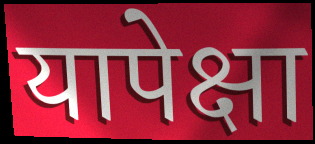
यापेक्षा